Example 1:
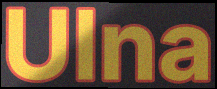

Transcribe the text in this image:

Ulna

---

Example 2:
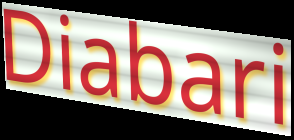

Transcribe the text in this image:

Diabari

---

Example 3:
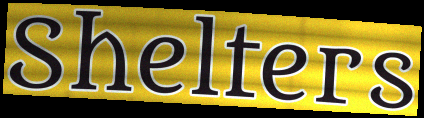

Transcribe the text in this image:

Shelters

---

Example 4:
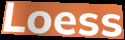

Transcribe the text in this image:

Loess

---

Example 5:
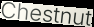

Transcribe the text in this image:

Chestnut